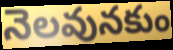
నెలవునకుం